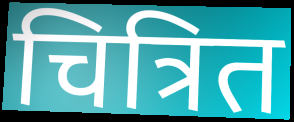
चित्रित